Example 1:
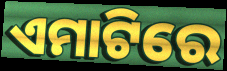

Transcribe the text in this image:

ଏମାଟିରେ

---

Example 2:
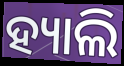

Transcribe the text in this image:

ହ୍ୟାଲି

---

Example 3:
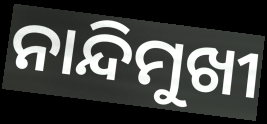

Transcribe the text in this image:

ନାନ୍ଦିମୁଖୀ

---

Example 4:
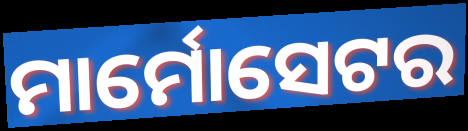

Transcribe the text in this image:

ମାର୍ମୋସେଟର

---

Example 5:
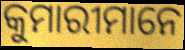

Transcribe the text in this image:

କୁମାରୀମାନେ